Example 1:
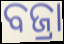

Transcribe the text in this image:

ବଜ୍ରା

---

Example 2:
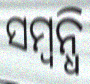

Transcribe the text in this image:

ସମ୍ବନ୍ଧି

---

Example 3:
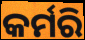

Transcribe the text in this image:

କର୍ମରି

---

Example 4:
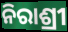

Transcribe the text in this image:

ନିରାଶ୍ରୀ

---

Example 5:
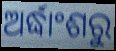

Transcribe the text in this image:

ଅର୍ଦ୍ଧାଂଶରୁ